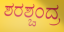
ಶರಶ್ಚಂದ್ರ